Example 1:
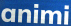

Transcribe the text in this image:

animi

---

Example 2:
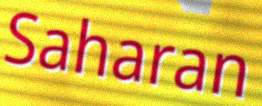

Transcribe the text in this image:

Saharan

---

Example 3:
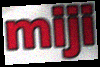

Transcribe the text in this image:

miji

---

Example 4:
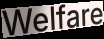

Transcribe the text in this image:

Welfare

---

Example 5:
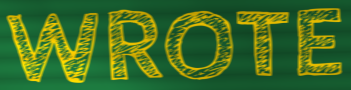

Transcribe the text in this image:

WROTE